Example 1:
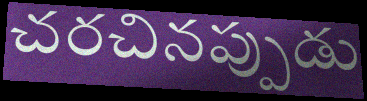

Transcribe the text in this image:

చరచినప్పుడు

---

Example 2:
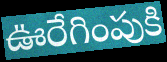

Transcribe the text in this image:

ఊరేగింపుకి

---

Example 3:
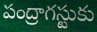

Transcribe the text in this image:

పంద్రాగస్టుకు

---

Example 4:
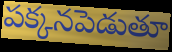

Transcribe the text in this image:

పక్కనపెడుతూ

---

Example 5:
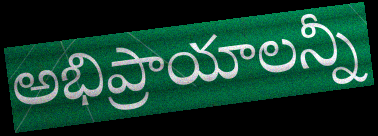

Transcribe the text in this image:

అభిప్రాయాలన్నీ